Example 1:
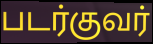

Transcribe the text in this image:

படர்குவர்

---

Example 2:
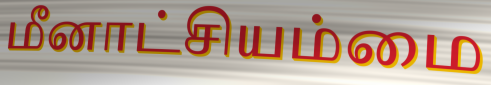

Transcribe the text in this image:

மீனாட்சியம்மை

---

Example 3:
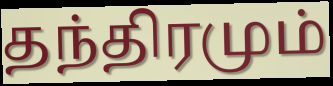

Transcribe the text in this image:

தந்திரமும்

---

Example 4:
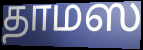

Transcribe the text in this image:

தாமஸ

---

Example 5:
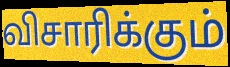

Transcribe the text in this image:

விசாரிக்கும்